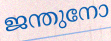
ജന്തുനോ